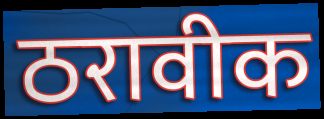
ठरावीक